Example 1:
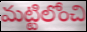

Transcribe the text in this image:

మట్టిలోంచి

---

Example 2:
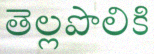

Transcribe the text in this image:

తెల్లపొలికి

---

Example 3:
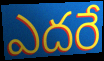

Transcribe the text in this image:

ఎదరే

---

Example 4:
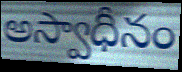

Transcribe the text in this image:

అస్వాధీనం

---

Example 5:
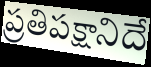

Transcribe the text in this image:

ప్రతిపక్షానిదే